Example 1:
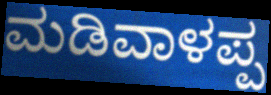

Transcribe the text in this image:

ಮಡಿವಾಳಪ್ಪ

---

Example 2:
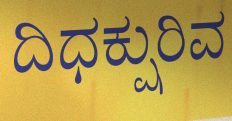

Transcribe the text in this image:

ದಿಧಕ್ಷುರಿವ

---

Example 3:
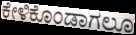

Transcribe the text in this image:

ಕೇಳಿಕೊಂಡಾಗಲೂ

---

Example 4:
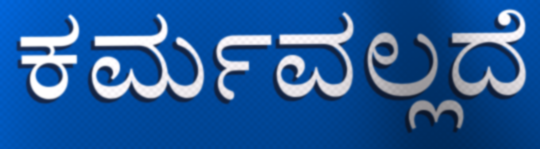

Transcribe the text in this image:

ಕರ್ಮವಲ್ಲದೆ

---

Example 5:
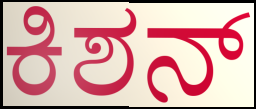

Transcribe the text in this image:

ಕಿಶನ್